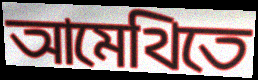
আমেথিতে